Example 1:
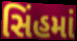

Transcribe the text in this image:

સિંહમાં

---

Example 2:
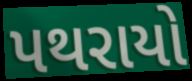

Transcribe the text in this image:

પથરાયો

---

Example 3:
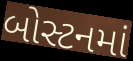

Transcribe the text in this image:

બોસ્ટનમાં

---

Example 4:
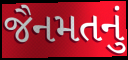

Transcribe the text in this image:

જૈનમતનું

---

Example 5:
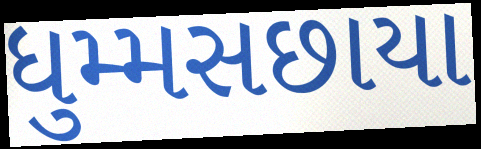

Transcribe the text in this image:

ધુમ્મસછાયા